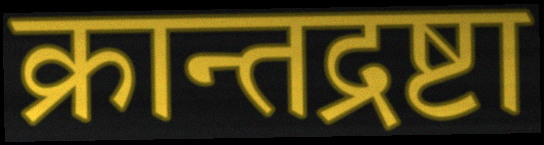
क्रान्तद्रष्टा